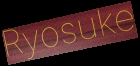
Ryosuke